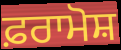
ਫ਼ਰਾਮੋਸ਼